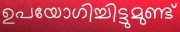
ഉപയോഗിച്ചിട്ടുമുണ്ട്